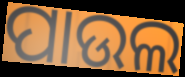
ପାଉଲ